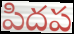
పిదప